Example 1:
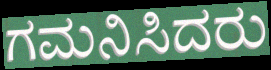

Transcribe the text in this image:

ಗಮನಿಸಿದರು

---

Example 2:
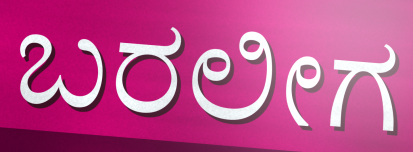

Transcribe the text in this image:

ಬರಲೀಗ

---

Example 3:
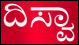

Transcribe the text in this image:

ದಿಸ್ವಾ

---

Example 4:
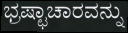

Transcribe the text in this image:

ಭ್ರಷ್ಟಾಚಾರವನ್ನು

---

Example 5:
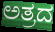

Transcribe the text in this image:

ಅತ್ರದ